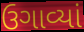
ઉગાવ્યાં